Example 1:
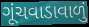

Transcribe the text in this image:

ગૂંચવાડાવાળું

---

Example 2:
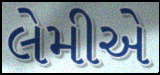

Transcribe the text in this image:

લેમીએ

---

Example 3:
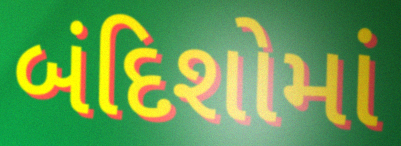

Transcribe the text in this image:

બંદિશોમાં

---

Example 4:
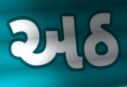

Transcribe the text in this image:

અઠ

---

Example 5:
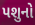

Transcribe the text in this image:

પશુનો